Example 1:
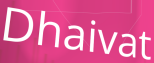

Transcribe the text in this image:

Dhaivat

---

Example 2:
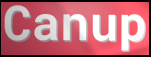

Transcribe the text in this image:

Canup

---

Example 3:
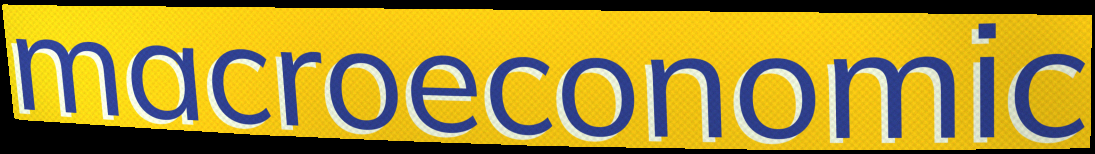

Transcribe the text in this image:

macroeconomic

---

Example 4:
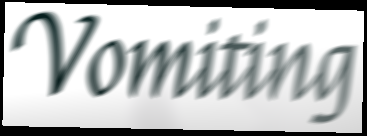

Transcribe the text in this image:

Vomiting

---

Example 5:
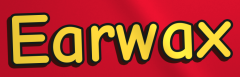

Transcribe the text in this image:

Earwax